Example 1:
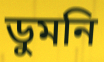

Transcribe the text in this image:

ডুমনি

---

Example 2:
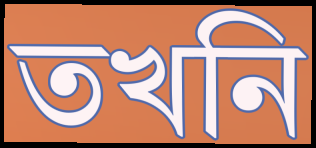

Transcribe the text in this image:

তখনি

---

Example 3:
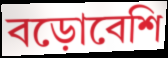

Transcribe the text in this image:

বড়োবেশি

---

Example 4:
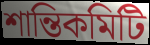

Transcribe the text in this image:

শান্তিকমিটি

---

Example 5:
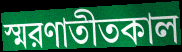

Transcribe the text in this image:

স্মরণাতীতকাল